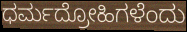
ಧರ್ಮದ್ರೋಹಿಗಳೆಂದು